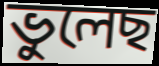
ভুলেছ